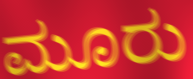
ಮೂರು